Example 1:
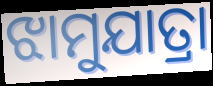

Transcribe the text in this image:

ଝାମୁଯାତ୍ରା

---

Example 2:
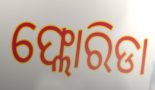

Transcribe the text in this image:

ଫ୍ଲୋରିଡା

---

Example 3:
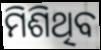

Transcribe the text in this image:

ମିଶିଥିବ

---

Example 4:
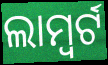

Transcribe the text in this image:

ଲାମ୍ବର୍ଟ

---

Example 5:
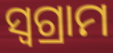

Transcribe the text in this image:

ସ୍ୱଗ୍ରାମ